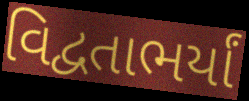
વિદ્વતાભર્યાં